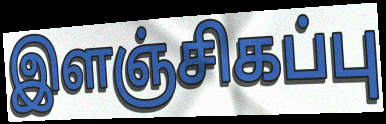
இளஞ்சிகப்பு